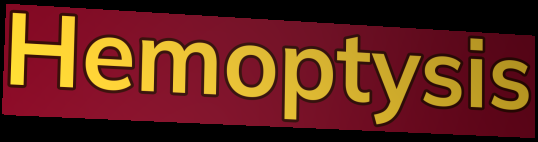
Hemoptysis